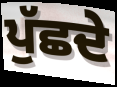
ਪੁੱਛਦੇ